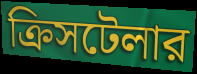
ক্রিসটেলার